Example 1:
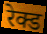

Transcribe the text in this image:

रेक्ड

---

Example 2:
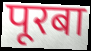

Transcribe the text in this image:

पूरबा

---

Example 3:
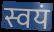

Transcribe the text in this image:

स्‍वयं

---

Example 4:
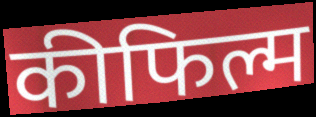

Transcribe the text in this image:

कीफिल्म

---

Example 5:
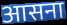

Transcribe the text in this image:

आसना